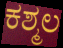
ಕಶ್ಮಲ